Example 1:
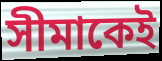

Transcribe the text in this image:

সীমাকেই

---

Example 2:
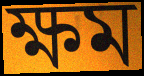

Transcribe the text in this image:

ক্ষম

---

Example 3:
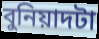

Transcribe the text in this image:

বুনিয়াদটা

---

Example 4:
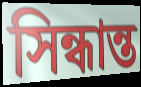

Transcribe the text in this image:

সিন্ধান্ত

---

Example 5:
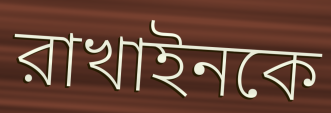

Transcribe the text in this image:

রাখাইনকে